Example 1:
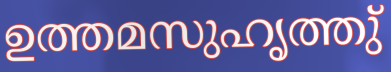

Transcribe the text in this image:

ഉത്തമസുഹൃത്തു്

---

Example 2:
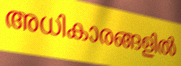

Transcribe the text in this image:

അധികാരങ്ങളിൽ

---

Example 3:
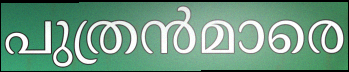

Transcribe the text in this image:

പുത്രൻമാരെ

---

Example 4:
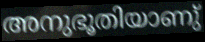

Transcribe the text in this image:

അനുഭൂതിയാണു്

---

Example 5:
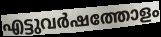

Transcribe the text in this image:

എട്ടുവർഷത്തോളം